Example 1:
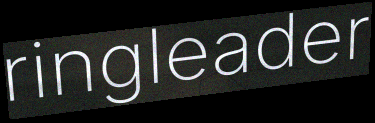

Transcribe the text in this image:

ringleader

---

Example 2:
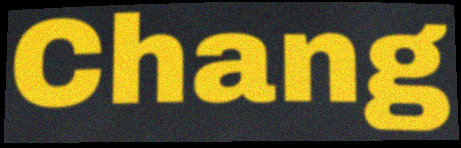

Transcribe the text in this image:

Chang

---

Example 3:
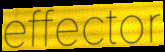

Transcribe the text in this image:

effector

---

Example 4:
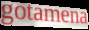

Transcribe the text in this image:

gotamena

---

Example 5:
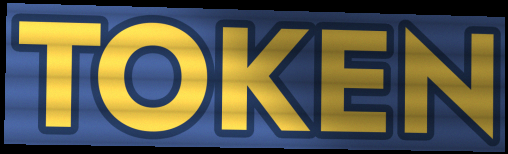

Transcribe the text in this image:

TOKEN